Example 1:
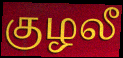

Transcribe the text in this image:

குழலீ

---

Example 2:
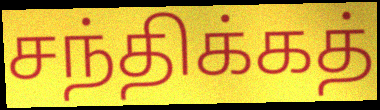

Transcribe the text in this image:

சந்திக்கத்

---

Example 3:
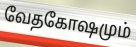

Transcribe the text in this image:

வேதகோஷமும்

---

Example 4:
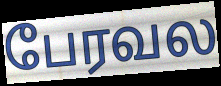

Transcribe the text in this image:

பேரவல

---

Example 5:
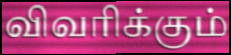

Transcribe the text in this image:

விவரிக்கும்